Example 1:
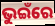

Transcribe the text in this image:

ଭୁଇଁରେ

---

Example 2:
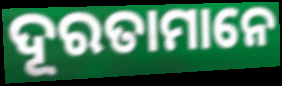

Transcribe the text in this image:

ଦୂରତାମାନେ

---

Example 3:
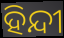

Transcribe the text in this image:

ହିନ୍ଦୀ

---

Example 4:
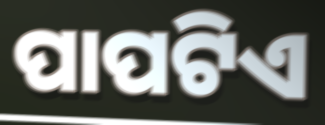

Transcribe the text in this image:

ପାପଟିଏ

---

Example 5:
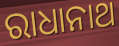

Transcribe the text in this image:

ରାଧାନାଥ